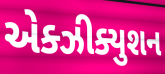
એક્ઝીક્યુશન